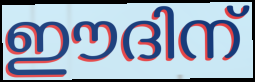
ഈദിന്